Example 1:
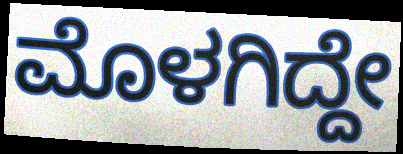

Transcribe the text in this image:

ಮೊಳಗಿದ್ದೇ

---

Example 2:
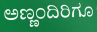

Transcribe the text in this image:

ಅಣ್ಣಂದಿರಿಗೂ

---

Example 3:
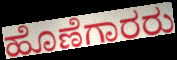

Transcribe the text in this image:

ಹೊಣೆಗಾರರು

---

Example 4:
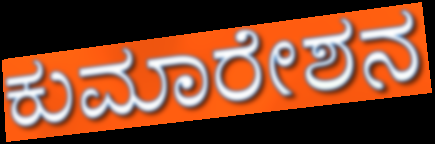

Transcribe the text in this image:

ಕುಮಾರೇಶನ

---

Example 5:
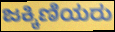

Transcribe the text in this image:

ಜಕ್ಕಿಣಿಯರು